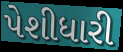
પેશીધારી